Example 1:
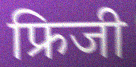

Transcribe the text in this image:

फ्रिजी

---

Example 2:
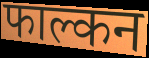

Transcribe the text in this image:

फाल्कन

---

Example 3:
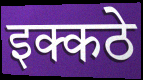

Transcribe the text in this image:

इक्कठे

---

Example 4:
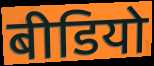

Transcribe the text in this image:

बीडियो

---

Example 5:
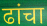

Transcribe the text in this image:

ढांचा